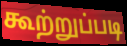
கூற்றுப்படி